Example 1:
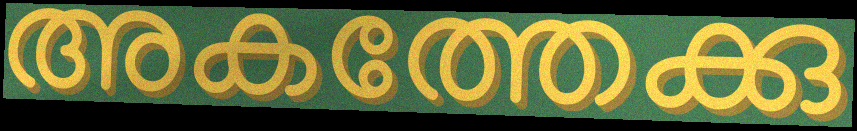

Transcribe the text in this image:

അകത്തേക്കു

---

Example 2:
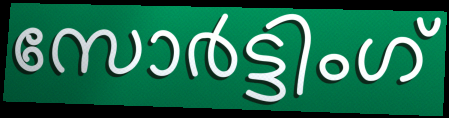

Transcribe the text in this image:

സോർട്ടിംഗ്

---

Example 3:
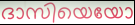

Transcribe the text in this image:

ദാസിയെയോ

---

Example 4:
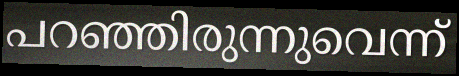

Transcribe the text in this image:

പറഞ്ഞിരുന്നുവെന്ന്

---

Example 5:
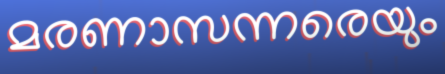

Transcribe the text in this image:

മരണാസന്നരെയും